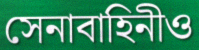
সেনাবাহিনীও